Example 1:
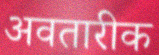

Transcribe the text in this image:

अवतारीक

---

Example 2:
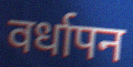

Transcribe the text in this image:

वर्धापन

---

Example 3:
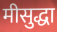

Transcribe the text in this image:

मीसुद्धा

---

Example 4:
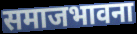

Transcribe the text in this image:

समाजभावना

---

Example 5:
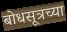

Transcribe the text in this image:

बोधसूत्रच्या